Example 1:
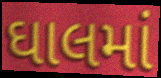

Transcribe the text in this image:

ઘાલમાં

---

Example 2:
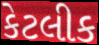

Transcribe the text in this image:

કેટલીક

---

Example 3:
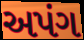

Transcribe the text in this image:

અપંગ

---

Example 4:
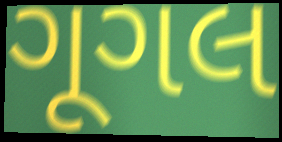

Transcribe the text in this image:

ગૂગલ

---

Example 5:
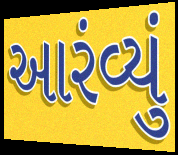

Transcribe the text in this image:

આરંવ્યું